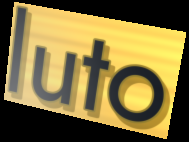
luto